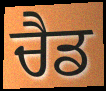
ਚੈਡ